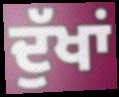
ਦੁੱਖਾਂ